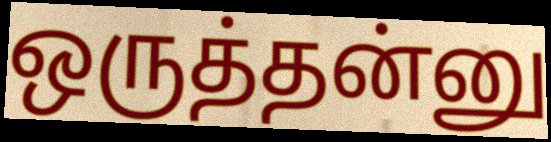
ஒருத்தன்னு